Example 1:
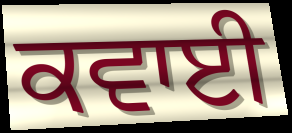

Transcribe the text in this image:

ਕਵਾਈ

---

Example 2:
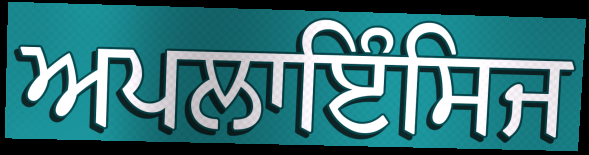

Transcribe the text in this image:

ਅਪਲਾਇੰਸਿਜ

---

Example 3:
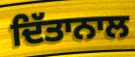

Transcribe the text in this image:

ਦਿੱਤਾਨਾਲ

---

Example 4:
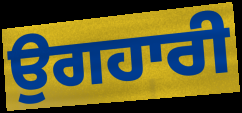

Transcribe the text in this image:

ਉਗਹਾਰੀ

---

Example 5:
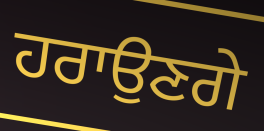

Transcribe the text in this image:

ਹਰਾਉਣਗੇ